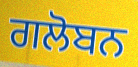
ਗਲੋਬਨ